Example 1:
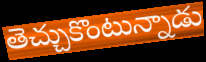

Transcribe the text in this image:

తెచ్చుకొంటున్నాడు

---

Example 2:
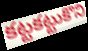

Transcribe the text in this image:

కట్టకట్టుకొని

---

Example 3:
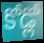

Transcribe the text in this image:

కోడ్లో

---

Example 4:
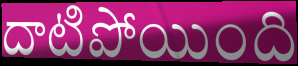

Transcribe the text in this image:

దాటిపోయింది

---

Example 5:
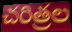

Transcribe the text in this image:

చరిత్రల